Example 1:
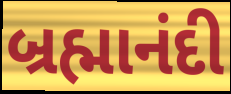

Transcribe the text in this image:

બ્રહ્માનંદી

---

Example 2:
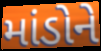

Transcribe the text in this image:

માંડોને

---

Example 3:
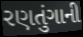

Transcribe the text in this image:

રણતુંગાની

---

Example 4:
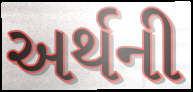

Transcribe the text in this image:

અર્થની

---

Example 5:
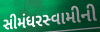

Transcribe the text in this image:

સીમંધરસ્વામીની